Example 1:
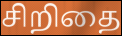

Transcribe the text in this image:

சிறிதை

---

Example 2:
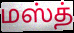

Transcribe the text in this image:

மஸ்த்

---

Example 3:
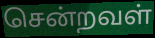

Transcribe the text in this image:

சென்றவள்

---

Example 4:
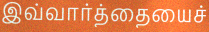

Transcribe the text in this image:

இவ்வார்த்தையைச்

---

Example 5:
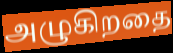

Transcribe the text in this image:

அழுகிறதை